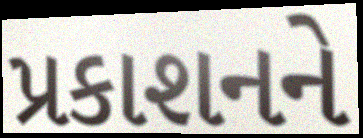
પ્રકાશનને